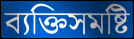
ব্যক্তিসমষ্টি